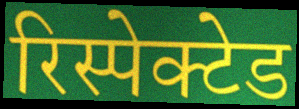
रिस्पेक्टेड